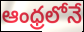
ఆంధ్రలోనే